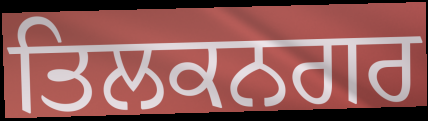
ਤਿਲਕਨਗਰ